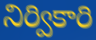
నిర్వికారి